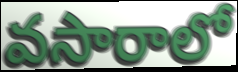
వసారాలో